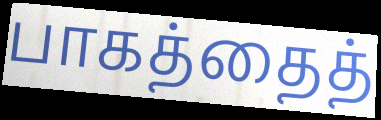
பாகத்தைத்